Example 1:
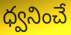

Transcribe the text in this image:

ధ్వనించే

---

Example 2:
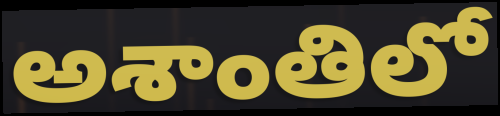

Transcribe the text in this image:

అశాంతిలో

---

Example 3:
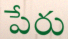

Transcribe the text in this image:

పేరు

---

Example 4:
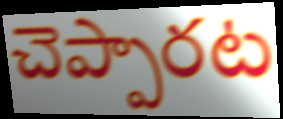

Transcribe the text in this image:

చెప్పారట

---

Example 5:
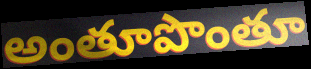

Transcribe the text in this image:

అంతూపొంతూ